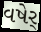
વષેર્